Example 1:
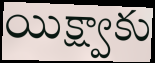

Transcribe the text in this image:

యిక్ష్వాకు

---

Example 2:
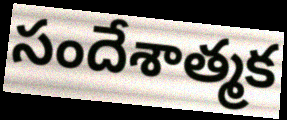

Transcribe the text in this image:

సందేశాత్మక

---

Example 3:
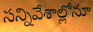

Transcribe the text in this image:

సన్నివేశాల్లోనూ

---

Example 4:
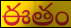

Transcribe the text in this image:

ఈతం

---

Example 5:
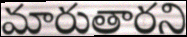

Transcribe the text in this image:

మారుతారని